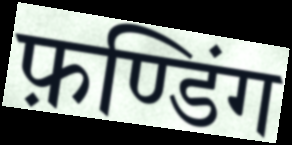
फ़ण्डिंग